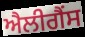
ਐਲੀਗੈਂਸ